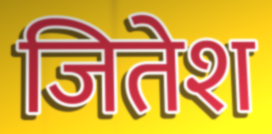
जितेश